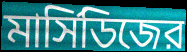
মার্সিডিজের